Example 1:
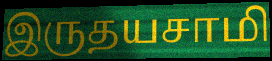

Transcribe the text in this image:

இருதயசாமி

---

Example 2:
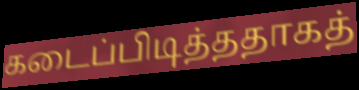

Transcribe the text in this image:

கடைப்பிடித்ததாகத்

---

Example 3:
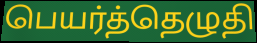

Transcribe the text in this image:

பெயர்த்தெழுதி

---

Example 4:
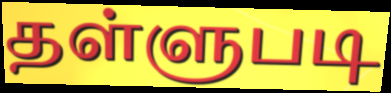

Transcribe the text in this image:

தள்ளுபடி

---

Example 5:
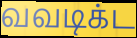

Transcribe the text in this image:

வவடிக்ட